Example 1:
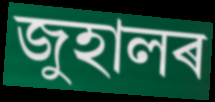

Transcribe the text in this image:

জুহালৰ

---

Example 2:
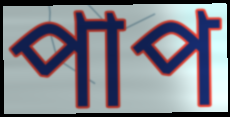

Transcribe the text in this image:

পাপ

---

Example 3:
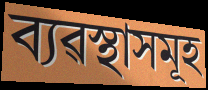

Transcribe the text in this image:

ব্যৱস্থাসমূহ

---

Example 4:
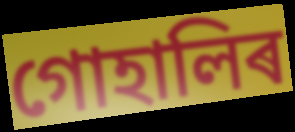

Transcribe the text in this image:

গোহালিৰ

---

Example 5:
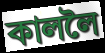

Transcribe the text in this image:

কাললৈ